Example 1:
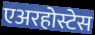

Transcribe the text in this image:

एअरहोस्टेस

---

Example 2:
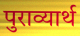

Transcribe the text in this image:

पुराव्यार्थ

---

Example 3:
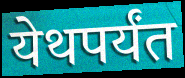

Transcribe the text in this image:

येथपर्यंत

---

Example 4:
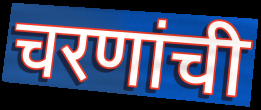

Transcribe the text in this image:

चरणांची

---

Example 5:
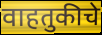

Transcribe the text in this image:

वाहतुकीचे